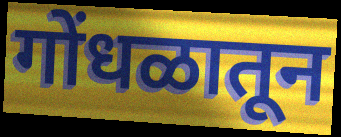
गोंधळातून